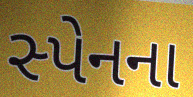
સ્પેનના